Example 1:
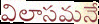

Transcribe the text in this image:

విలాసమనే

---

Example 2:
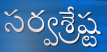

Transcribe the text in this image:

సర్వశ్రేష్ట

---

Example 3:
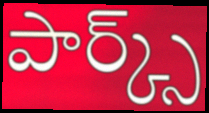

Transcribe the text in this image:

పార్క్స్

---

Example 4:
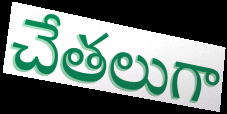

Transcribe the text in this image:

చేతలుగా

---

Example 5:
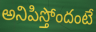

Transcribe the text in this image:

అనిపిస్తోందంటే